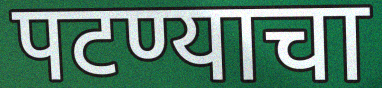
पटण्याचा